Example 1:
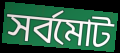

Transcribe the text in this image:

সর্বমোট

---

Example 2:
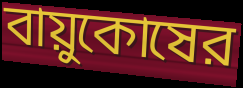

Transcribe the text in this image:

বায়ুকোষের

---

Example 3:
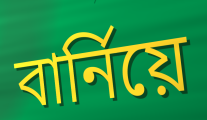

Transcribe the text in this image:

বার্নিয়ে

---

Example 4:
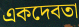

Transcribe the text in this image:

একদেবতা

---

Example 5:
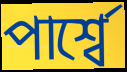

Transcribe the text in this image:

পার্শ্বে